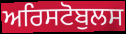
ਅਰਿਸਟੋਬੁਲਸ